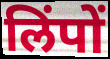
लिंपों